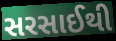
સરસાઈથી